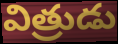
విత్రుడు